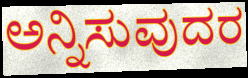
ಅನ್ನಿಸುವುದರ